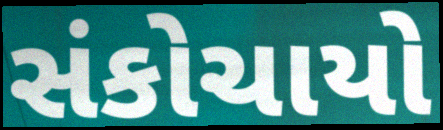
સંકોચાયો